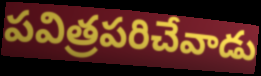
పవిత్రపరిచేవాడు